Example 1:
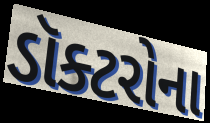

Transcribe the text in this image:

ડૉક્ટરોના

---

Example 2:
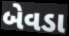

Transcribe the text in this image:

બેવડા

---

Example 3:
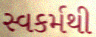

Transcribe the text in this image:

સ્વકર્મથી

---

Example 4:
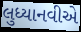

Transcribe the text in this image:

લુધ્યાનવીએ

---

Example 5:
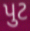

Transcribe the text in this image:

પુટ